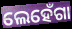
ଲେହେଁଗା